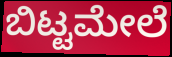
ಬಿಟ್ಟಮೇಲೆ